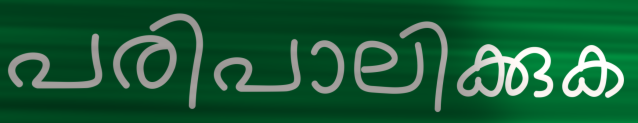
പരിപാലിക്കുക